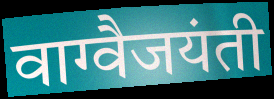
वाग्वैजयंती